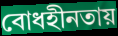
বোধহীনতায়